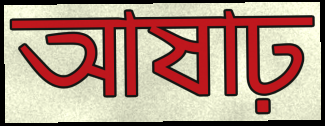
আষাঢ়